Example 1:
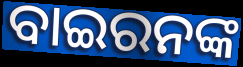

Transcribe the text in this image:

ବାଇରନଙ୍କ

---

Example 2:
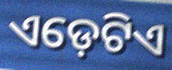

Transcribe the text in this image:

ଏଡ଼େଟିଏ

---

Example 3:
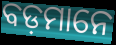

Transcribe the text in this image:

ବଡ଼ମାନେ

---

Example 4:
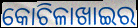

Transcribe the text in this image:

କୋଚିଳାଖାଇର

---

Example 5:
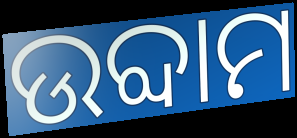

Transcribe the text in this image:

ଉବ୍ଦାମ